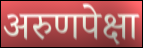
अरुणपेक्षा